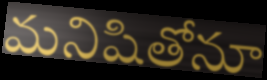
మనిషితోనూ